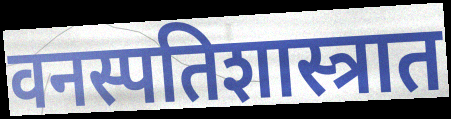
वनस्पतिशास्त्रात